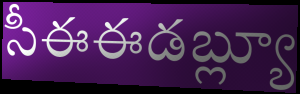
సీఈఈడబ్ల్యూ